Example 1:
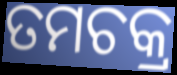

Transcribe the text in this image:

ତମଚକ୍ର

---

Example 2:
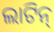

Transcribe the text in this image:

ଲାଟିନ୍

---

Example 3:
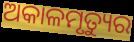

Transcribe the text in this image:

ଅକାଳମୃତ୍ୟୁର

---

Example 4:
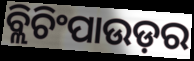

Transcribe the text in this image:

ବ୍ଲିଚିଂପାଉଡ଼ର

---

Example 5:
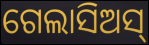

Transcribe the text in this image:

ଗେଲାସିଅସ୍